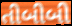
તીબીબી